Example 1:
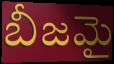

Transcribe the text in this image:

బీజమై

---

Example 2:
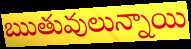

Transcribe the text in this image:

ఋతువులున్నాయి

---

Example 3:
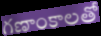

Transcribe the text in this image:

గణాంకాలతో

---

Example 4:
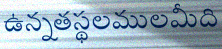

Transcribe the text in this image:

ఉన్నతస్థలములమీది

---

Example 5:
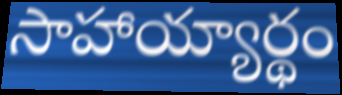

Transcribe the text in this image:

సాహాయ్యార్థం